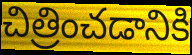
చిత్రించడానికి